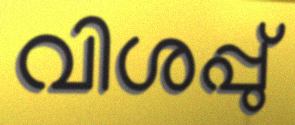
വിശപ്പു്